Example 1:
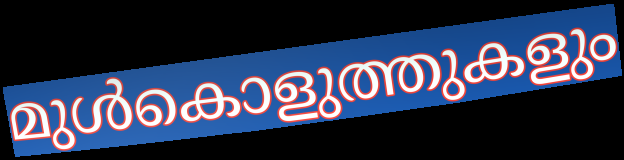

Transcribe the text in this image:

മുൾകൊളുത്തുകളും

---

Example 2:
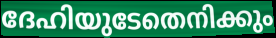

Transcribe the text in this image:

ദേഹിയുടേതെനിക്കും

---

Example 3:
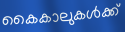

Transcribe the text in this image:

കൈകാലുകൾക്ക്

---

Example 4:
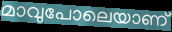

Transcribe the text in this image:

മാവുപോലെയാണ്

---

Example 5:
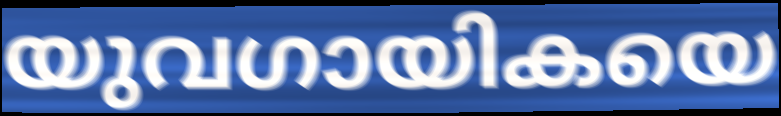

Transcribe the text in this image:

യുവഗായികയെ